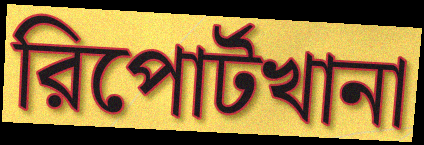
রিপোর্টখানা